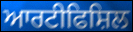
ਆਰਟੀਫਿਸ਼ਿਲ